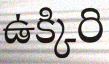
ఉక్కిరి